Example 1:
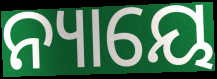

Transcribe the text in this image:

ନ୍ୟାୟେ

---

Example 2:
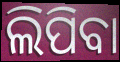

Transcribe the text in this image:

ଲିପିବା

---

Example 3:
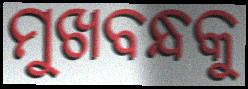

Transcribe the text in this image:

ମୁଖବନ୍ଧକୁ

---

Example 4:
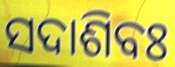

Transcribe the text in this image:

ସଦାଶିବଃ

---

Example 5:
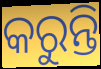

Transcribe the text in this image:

କରୁନ୍ତି